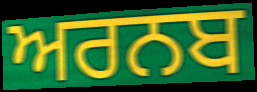
ਅਰਨਬ